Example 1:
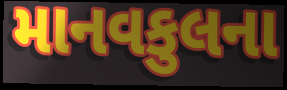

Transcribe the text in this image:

માનવકુલના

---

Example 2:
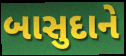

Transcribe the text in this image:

બાસુદાને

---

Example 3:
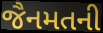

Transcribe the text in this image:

જૈનમતની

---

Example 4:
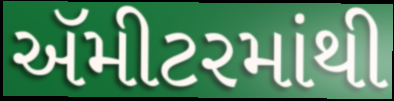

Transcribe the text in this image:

ઍમીટરમાંથી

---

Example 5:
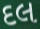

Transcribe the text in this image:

દલ